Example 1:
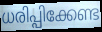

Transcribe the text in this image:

ധരിപ്പിക്കേണ്ട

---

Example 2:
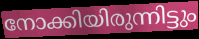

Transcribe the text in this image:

നോക്കിയിരുന്നിട്ടും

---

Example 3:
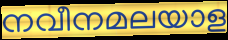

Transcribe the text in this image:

നവീനമലയാള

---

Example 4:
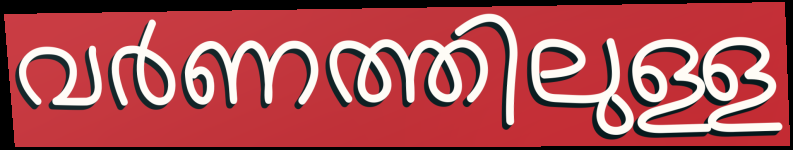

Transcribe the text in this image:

വർണത്തിലുള്ള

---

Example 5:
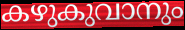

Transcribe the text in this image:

കഴുകുവാനും